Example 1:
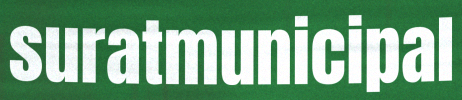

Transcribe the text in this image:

suratmunicipal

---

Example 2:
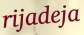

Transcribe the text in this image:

rijadeja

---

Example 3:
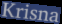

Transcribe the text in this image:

Krisna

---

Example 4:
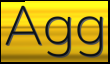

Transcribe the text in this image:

Agg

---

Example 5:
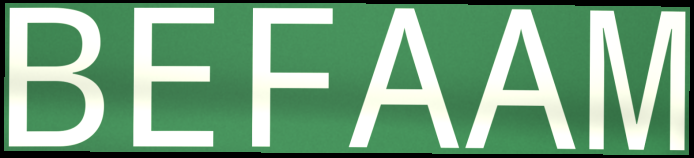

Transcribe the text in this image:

BEFAAM